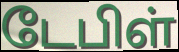
டேபிள்